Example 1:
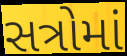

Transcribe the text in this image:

સત્રોમાં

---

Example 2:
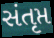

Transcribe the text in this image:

સંતૃપ્ત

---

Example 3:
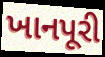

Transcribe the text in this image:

ખાનપૂરી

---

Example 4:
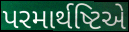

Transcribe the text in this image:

પરમાર્થષ્ટિએ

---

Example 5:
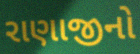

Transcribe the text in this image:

રાણાજીનો